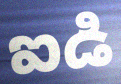
ఐడి